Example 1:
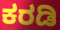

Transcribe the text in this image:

ಕರಡಿ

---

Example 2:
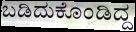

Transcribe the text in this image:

ಬಡಿದುಕೊಂಡಿದ್ದ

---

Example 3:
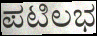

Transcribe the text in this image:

ಪಟಿಲಭ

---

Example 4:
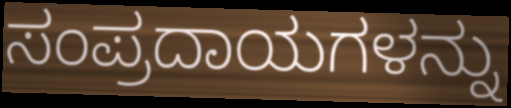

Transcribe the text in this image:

ಸಂಪ್ರದಾಯಗಳನ್ನು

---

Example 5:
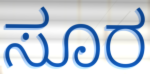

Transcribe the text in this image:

ಸೂರ